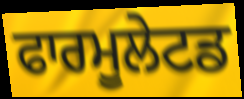
ਫਾਰਮੂਲੇਟਡ